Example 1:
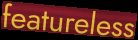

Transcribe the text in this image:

featureless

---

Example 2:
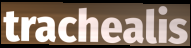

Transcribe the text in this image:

trachealis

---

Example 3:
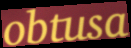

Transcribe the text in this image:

obtusa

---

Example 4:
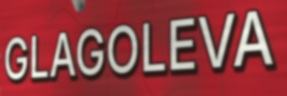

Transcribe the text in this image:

GLAGOLEVA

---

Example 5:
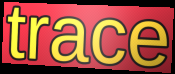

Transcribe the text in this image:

trace